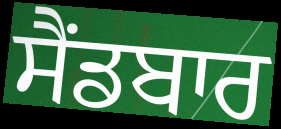
ਸੈਂਡਬਾਰ